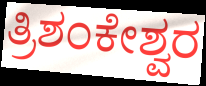
ತ್ರಿಶಂಕೇಶ್ವರ